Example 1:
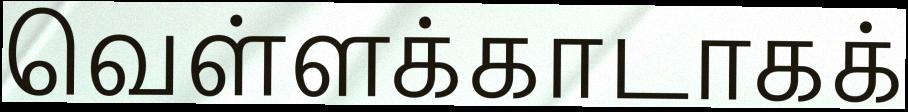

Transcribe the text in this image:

வெள்ளக்காடாகக்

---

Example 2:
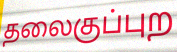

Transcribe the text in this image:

தலைகுப்புற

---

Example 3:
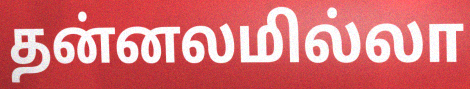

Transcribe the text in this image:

தன்னலமில்லா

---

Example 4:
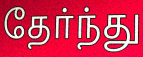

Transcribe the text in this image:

தேர்ந்து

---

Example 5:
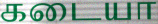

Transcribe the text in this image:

கடையா